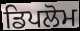
ਡਿਪਲੋਮ